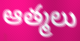
ఆత్మలు